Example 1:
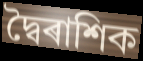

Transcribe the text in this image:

দ্বৈৰাশিক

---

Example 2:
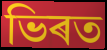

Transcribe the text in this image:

ভিৰত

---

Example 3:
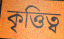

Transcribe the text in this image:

কৃত্তিত্ব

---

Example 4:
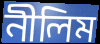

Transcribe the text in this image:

নীলিম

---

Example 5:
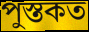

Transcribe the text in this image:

পুস্তকত